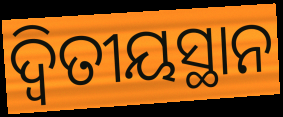
ଦ୍ୱିତୀୟସ୍ଥାନ